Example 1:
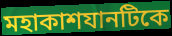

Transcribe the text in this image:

মহাকাশযানটিকে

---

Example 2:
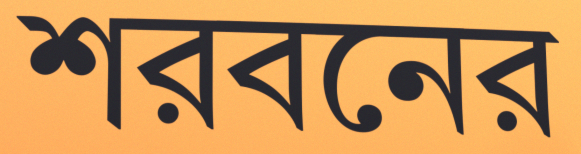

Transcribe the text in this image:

শরবনের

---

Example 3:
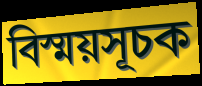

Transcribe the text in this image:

বিস্ময়সূচক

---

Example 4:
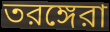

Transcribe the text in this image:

তরঙ্গেরা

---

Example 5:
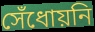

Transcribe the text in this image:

সেঁধোয়নি